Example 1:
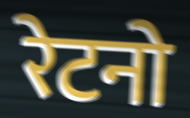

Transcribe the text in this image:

रेटनो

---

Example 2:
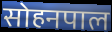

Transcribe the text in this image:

सोहनपाल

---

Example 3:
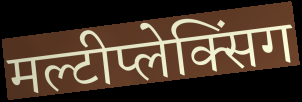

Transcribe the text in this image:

मल्टीप्लेक्सिंग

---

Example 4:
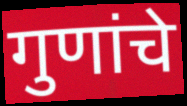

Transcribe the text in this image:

गुणांचे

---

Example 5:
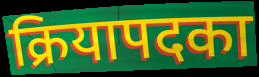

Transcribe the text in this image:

क्रियापदका